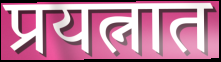
प्रयत्नात